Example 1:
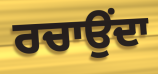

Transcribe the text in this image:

ਰਚਾਉਂਦਾ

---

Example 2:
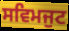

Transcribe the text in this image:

ਸਵਿਮਜੁਟ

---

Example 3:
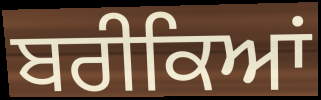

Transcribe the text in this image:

ਬਰੀਕਿਆਂ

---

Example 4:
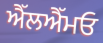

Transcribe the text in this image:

ਐੱਲਐੱਮਓ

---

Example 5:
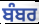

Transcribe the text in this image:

ਬੰਬਰ